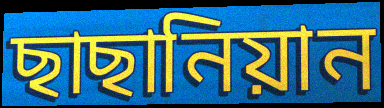
ছাছানিয়ান